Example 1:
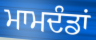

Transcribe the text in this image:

ਮਾਮਦੰਡਾਂ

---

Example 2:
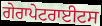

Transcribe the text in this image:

ਗੇਰਾਪੇਟਰਾਈਟਸ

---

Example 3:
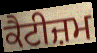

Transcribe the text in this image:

ਕੈਟੀਜ਼ਮ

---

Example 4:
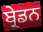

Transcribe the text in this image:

ਬ੍ਰੇਡਨ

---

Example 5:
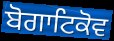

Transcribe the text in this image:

ਬੋਗਾਟਿਕੋਵ